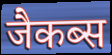
जैकब्स